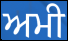
ਅਮੀ